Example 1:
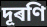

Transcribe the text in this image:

দূৰণি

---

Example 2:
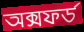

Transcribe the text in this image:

অক্সফৰ্ড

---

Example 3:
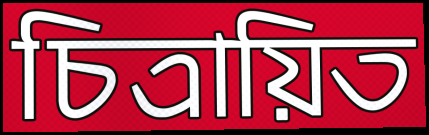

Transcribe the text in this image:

চিত্ৰায়িত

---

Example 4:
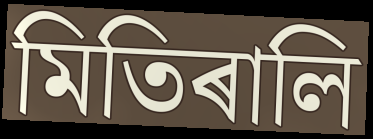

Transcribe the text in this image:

মিতিৰালি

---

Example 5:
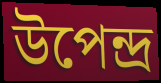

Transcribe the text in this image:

উপেন্দ্ৰ